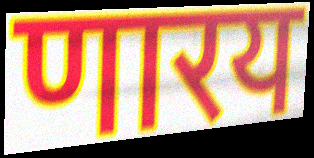
णारय